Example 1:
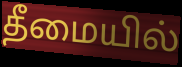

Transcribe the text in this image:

தீமையில்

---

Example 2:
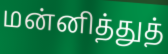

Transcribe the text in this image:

மன்னித்துத்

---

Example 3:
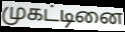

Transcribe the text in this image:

முகட்டினை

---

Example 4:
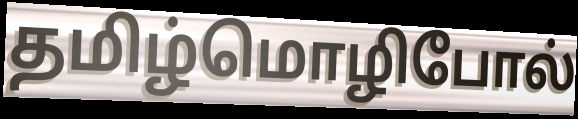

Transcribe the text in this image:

தமிழ்மொழிபோல்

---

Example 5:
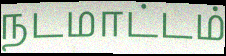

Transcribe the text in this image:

நடமாட்டம்